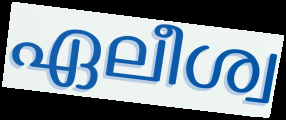
ഏലീശ്വ